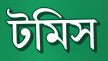
টমিস